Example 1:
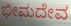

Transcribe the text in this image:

ಭೀಮದೇವ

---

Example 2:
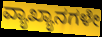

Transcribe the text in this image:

ವ್ಯಾಖ್ಯಾನಗಳೇ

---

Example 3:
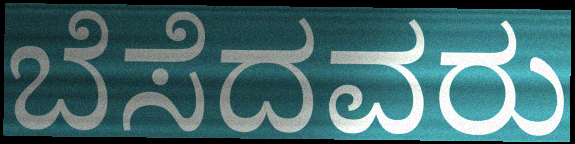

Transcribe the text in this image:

ಬೆಸೆದವರು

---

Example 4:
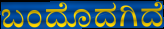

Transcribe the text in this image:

ಬಂದೊದಗಿದೆ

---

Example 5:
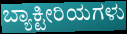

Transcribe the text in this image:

ಬ್ಯಾಕ್ಟೀರಿಯಗಳು